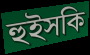
হুইসকি